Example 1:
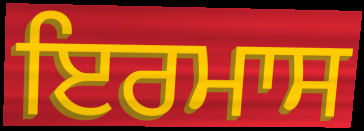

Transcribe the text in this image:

ਇਰਮਾਸ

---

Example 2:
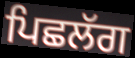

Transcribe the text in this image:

ਪਿਛਲੱਗ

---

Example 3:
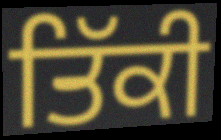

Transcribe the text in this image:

ਤਿੱਕੀ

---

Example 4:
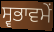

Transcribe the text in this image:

ਸ੍ਵਭਾਵਮੇਂ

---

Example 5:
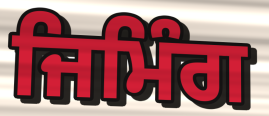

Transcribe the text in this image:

ਜਿਮਿੰਗ